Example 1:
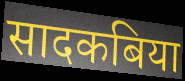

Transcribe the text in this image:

सादकबिया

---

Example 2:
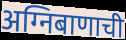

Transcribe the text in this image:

अग्निबाणाची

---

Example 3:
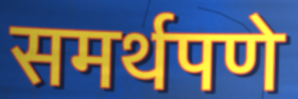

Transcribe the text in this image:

समर्थपणे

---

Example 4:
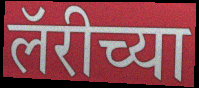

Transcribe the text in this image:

लॅरीच्या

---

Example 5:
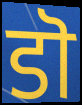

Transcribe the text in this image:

डॊ